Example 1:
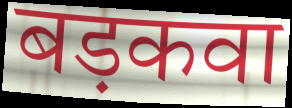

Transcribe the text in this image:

बड़कवा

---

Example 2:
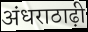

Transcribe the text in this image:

अंधराठाढ़ी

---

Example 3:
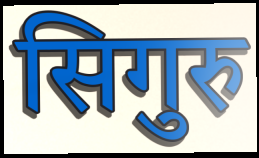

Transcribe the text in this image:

सिगुरु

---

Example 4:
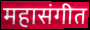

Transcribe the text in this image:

महासंगीत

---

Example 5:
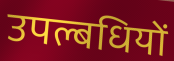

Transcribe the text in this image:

उपल्बधियों